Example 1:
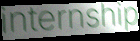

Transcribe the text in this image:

internship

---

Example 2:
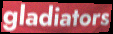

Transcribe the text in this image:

gladiators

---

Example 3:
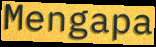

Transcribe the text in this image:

Mengapa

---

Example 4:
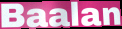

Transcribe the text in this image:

Baalan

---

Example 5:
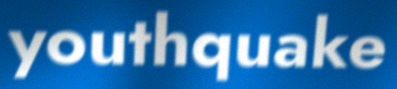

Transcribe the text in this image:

youthquake